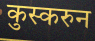
कुस्करुन